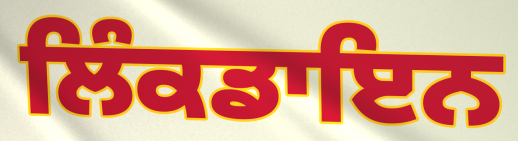
ਲਿੰਕਡਾਇਨ